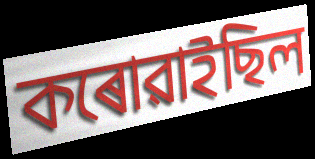
কৰোৱাইছিল